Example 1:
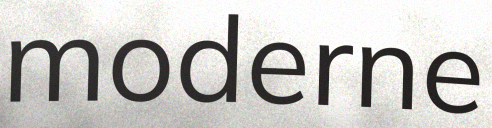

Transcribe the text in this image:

moderne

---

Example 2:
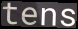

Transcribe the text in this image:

tens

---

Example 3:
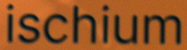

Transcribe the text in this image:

ischium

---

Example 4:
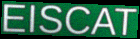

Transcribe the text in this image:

EISCAT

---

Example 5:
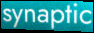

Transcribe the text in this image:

synaptic